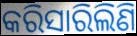
କରିସାରିଲିଣି